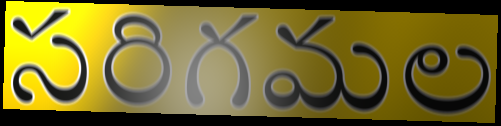
సరిగమల